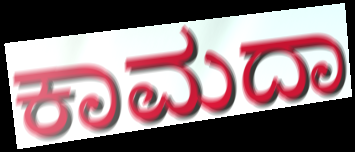
ಕಾಮದಾ